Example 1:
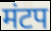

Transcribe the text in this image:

मंटप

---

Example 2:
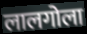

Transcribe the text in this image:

लालगोला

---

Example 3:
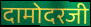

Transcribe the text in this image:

दामोदरजी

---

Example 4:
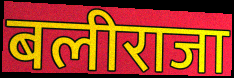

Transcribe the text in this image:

बलीराजा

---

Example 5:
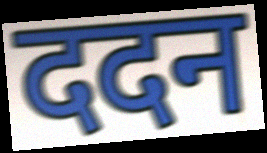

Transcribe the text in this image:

ददन